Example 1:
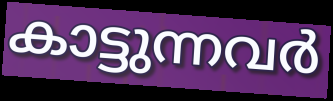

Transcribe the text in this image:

കാട്ടുന്നവർ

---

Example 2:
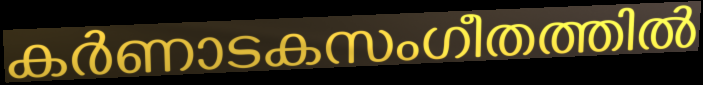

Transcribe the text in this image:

കർണാടകസംഗീതത്തിൽ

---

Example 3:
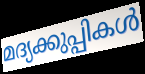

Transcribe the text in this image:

മദ്യക്കുപ്പികൾ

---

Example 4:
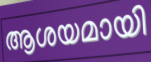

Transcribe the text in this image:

ആശയമായി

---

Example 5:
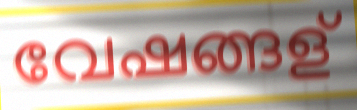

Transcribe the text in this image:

വേഷങ്ങള്